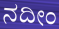
ನದೀಂ